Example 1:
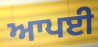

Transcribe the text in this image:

ਆਪਈ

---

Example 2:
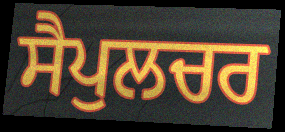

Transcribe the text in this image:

ਸੈਪੁਲਚਰ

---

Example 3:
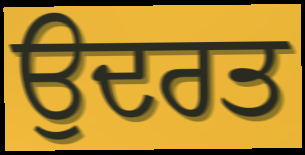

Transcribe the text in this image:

ਉਦਰਤ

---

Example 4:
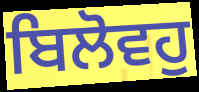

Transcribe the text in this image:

ਬਿਲੋਵਹੁ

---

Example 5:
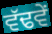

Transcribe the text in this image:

ਵੱਢਵੇਂ